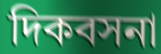
দিকবসনা